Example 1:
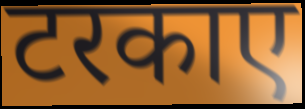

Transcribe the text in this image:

टरकाए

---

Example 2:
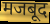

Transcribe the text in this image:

मजबूद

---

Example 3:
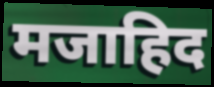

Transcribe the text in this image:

मजाहिद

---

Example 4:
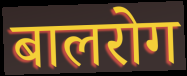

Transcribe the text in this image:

बालरोग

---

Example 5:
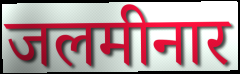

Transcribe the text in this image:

जलमीनार